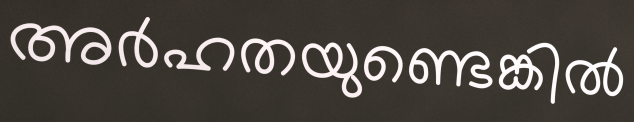
അർഹതയുണ്ടെങ്കിൽ